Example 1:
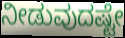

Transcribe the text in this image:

ನೀಡುವುದಷ್ಟೇ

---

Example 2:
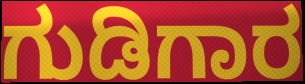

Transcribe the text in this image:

ಗುಡಿಗಾರ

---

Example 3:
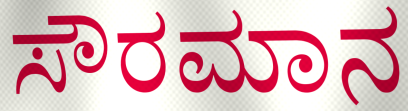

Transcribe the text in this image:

ಸೌರಮಾನ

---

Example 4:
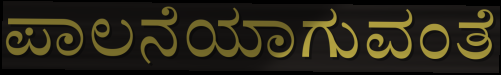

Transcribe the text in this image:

ಪಾಲನೆಯಾಗುವಂತೆ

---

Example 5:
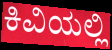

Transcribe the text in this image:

ಕಿವಿಯಲ್ಲಿ